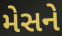
મેસને